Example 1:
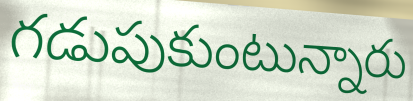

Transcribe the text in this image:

గడుపుకుంటున్నారు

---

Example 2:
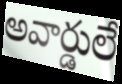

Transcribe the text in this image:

అవార్డులే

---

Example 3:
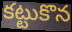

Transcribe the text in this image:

కట్టుకొన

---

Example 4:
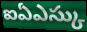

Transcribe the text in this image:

ఐఏఎస్కు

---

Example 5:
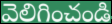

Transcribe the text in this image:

వెలిగించండి